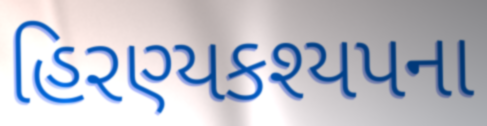
હિરણ્યકશ્યપના